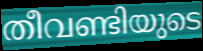
തീവണ്ടിയുടെ